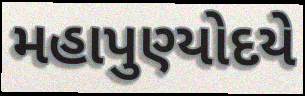
મહાપુણ્યોદયે